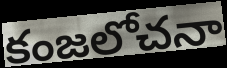
కంజలోచనా